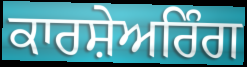
ਕਾਰਸ਼ੇਅਰਿੰਗ